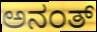
ಅನಂತ್